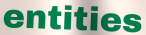
entities